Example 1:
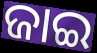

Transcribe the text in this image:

ଜାଇ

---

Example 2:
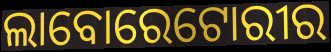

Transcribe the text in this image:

ଲାବୋରେଟୋରୀର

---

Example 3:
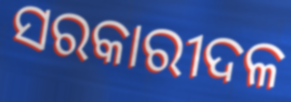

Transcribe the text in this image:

ସରକାରୀଦଳ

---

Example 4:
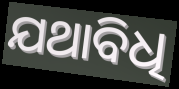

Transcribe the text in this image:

ଯଥାବିଧି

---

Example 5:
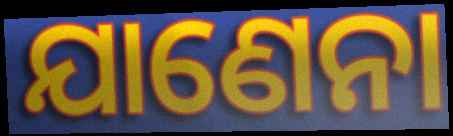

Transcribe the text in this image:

ଯାଣେନା